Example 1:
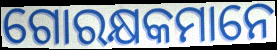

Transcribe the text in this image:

ଗୋରକ୍ଷକମାନେ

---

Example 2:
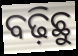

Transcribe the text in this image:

ବଢ଼ିଛୁ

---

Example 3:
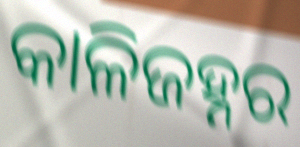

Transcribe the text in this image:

କାଳିଜହ୍ନର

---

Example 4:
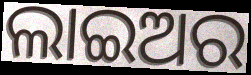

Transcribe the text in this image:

ଲାଇଅର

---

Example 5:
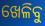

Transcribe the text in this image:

ଖେଳିବୁ